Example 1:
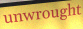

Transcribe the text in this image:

unwrought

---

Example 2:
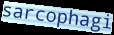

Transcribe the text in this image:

sarcophagi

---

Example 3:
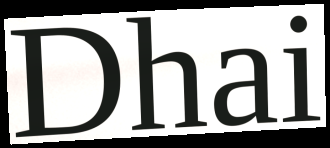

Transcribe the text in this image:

Dhai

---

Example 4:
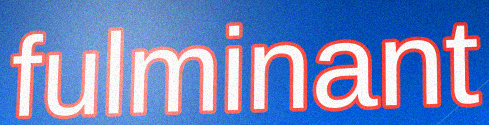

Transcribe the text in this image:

fulminant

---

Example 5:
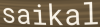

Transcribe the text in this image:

saikal